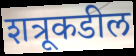
शत्रूकडील